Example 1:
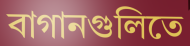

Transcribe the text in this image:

বাগানগুলিতে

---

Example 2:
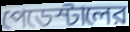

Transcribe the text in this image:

পেডেস্টালের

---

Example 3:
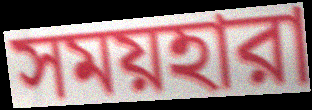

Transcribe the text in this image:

সময়হারা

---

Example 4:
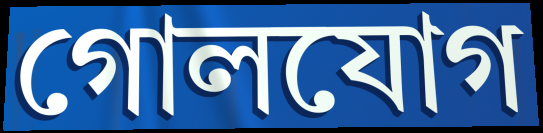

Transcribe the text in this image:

গোলযোগ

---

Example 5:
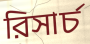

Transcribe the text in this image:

রিসার্চ